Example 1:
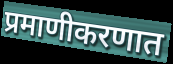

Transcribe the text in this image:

प्रमाणीकरणात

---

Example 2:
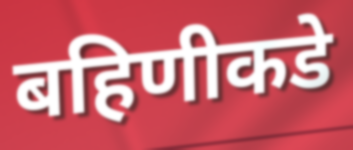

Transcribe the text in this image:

बहिणीकडे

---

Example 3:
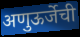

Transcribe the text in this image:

अणुऊर्जेची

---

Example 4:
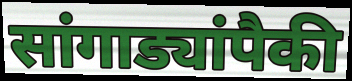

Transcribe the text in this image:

सांगाड्यांपैकी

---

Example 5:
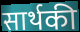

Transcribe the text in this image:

सार्थकी